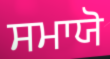
ਸਮਾਯੋ